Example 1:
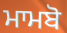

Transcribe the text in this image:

ਮਾਮਬੋ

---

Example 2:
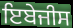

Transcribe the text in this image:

ਇਬੇਜੀਸ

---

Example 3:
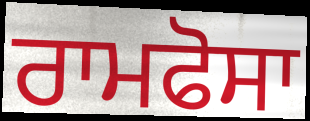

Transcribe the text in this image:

ਰਾਮਫੋਸਾ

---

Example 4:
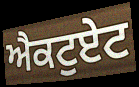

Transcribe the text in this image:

ਐਕਟੁਏਟ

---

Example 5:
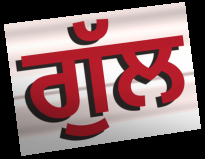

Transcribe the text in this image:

ਗੁੱਲ